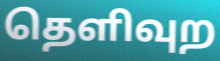
தெளிவுற